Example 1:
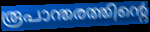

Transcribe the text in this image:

രൂപാന്തരത്തിന്റെ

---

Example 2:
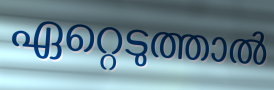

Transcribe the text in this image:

ഏറ്റെടുത്താൽ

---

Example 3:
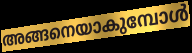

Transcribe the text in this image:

അങ്ങനെയാകുമ്പോൾ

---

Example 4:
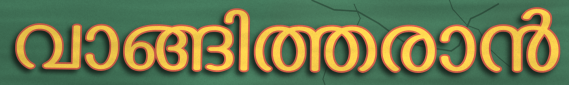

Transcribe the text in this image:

വാങ്ങിത്തരാൻ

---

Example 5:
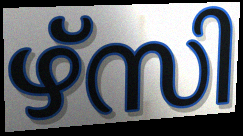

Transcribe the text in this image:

ഴ്സി